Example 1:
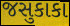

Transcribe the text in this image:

જસુકાકા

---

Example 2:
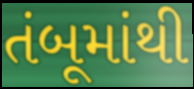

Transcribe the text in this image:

તંબૂમાંથી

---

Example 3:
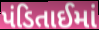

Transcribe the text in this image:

પંડિતાઈમાં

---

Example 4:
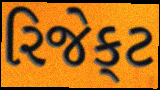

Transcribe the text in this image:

રિજેક્‌ટ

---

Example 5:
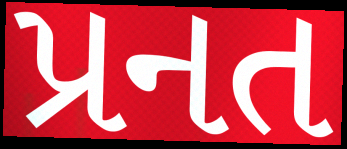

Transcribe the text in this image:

પ્રનત